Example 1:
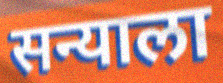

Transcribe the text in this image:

सन्याला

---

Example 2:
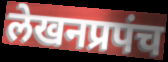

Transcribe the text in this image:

लेखनप्रपंच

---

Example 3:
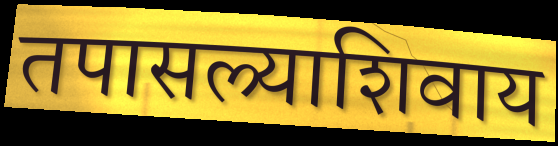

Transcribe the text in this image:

तपासल्याशिवाय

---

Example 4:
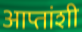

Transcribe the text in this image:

आप्तांशी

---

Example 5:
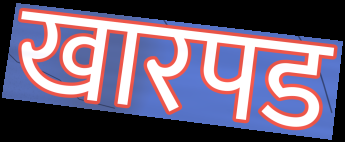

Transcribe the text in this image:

खारपड